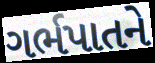
ગર્ભપાતને